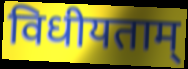
विधीयताम्